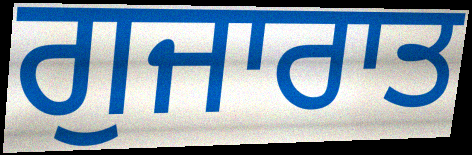
ਗੁਜਾਰਾਤ